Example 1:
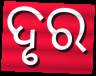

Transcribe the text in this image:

ଦୃର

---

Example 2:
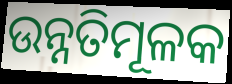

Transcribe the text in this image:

ଉନ୍ନତିମୂଳକ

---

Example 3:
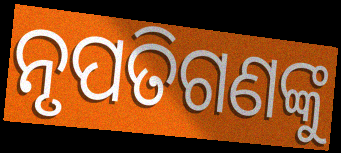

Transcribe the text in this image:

ନୃପତିଗଣଙ୍କୁ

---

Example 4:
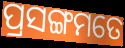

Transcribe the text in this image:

ପ୍ରସଙ୍ଗମତେ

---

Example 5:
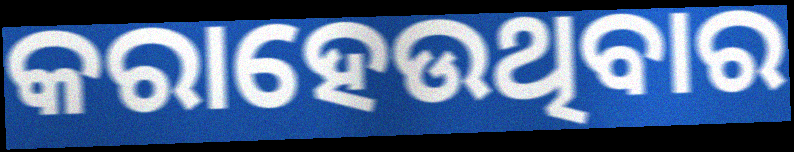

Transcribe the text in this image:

କରାହେଉଥିବାର